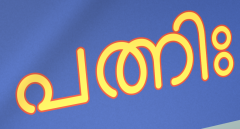
പത്നിഃ